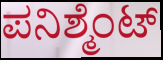
ಪನಿಶ್ಮೆಂಟ್